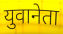
युवानेता